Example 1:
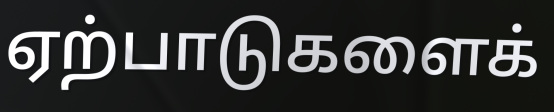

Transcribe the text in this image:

ஏற்பாடுகளைக்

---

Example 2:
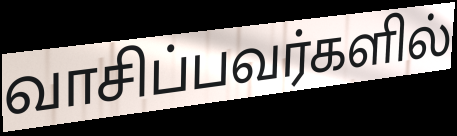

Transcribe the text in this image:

வாசிப்பவர்களில்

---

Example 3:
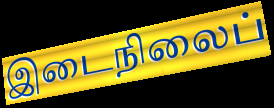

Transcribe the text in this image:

இடைநிலைப்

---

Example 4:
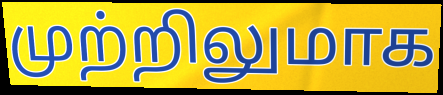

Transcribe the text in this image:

முற்றிலுமாக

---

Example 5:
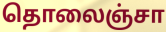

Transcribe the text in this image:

தொலைஞ்சா